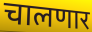
चालणार